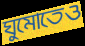
ঘুমোতেও